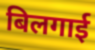
बिलगाई